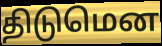
திடுமென